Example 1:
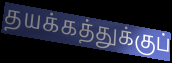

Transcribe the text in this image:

தயக்கத்துக்குப்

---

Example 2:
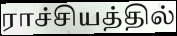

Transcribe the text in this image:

ராச்சியத்தில்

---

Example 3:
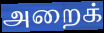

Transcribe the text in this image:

அறைக்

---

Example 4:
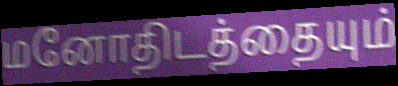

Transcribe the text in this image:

மனோதிடத்தையும்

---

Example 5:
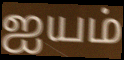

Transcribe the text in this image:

ஐயம்